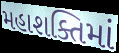
મહાશક્તિમાં